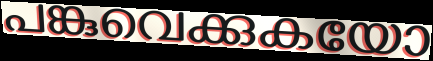
പങ്കുവെക്കുകയോ